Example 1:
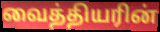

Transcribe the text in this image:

வைத்தியரின்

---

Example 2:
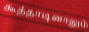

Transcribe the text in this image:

கூத்தாடினாலும்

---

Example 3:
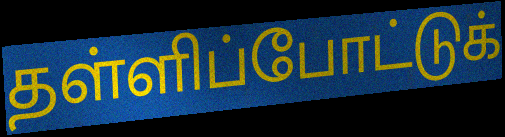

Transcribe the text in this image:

தள்ளிப்போட்டுக்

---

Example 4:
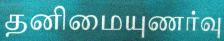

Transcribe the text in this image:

தனிமையுணர்வு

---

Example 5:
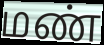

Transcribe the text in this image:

மண்